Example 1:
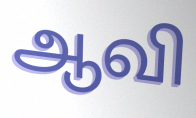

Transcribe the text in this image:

ஆவி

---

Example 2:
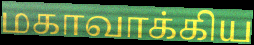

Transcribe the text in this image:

மகாவாக்கிய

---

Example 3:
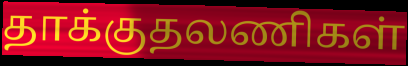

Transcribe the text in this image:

தாக்குதலணிகள்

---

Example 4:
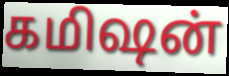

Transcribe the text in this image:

கமிஷன்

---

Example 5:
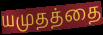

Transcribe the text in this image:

யமுதத்தை